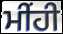
ਮੀਂਹੀ